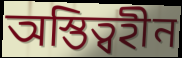
অস্তিত্বহীন